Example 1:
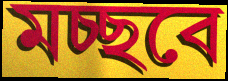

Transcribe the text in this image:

মচ্ছবে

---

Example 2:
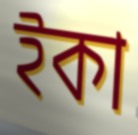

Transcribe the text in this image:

ইকা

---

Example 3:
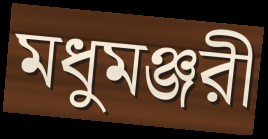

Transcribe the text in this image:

মধুমঞ্জরী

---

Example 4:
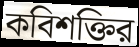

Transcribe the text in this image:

কবিশক্তির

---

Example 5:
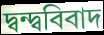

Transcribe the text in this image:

দ্বন্দ্ববিবাদ